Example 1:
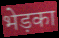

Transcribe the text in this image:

भेड़का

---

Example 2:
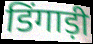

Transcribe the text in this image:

डिंगाड़ी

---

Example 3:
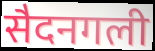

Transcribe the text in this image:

सैदनगली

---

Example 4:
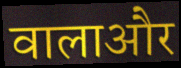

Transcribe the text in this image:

वालाऔर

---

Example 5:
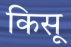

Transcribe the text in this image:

किसू